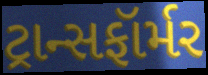
ટ્રાન્સફૉર્મર